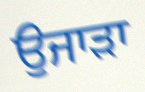
ਉਜਾੜਾ